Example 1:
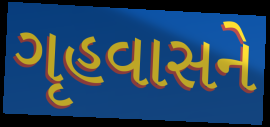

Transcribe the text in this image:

ગૃહવાસને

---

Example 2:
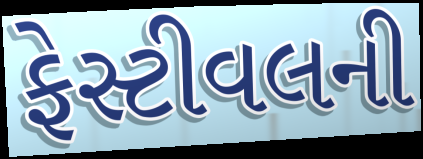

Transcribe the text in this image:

ફેસ્ટીવલની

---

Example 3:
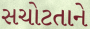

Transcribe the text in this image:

સચોટતાને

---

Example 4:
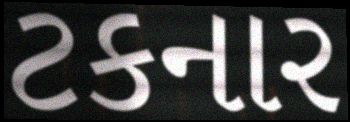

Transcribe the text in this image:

ટકનાર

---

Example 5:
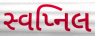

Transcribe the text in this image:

સ્વપ્નિલ